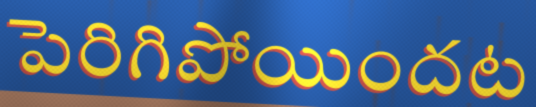
పెరిగిపోయిందట